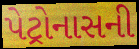
પેટ્રોનાસની